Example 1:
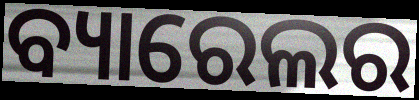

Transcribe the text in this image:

ବ୍ୟାରେଲର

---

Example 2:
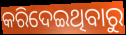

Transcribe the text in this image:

କରିଦେଇଥିବାରୁ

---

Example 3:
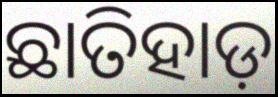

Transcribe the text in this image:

ଛାତିହାଡ଼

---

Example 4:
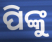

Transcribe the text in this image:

ପିଙ୍କୁ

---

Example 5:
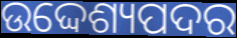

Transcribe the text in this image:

ଉଦ୍ଦେଶ୍ୟପଦର